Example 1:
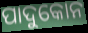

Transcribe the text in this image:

ପାଦୁକୋନ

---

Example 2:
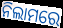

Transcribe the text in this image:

ନିଲାମରେ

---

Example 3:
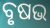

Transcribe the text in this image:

ବୃଷଭ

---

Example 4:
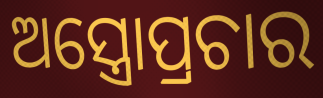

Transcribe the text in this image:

ଅସ୍ତ୍ରୋପ୍ରଚାର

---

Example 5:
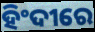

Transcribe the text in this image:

ହିଂଦୀରେ